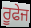
ਰੂਫੇਜ